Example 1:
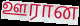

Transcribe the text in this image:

ஊரான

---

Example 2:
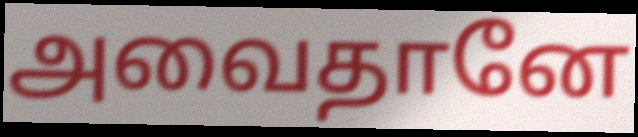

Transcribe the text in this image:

அவைதானே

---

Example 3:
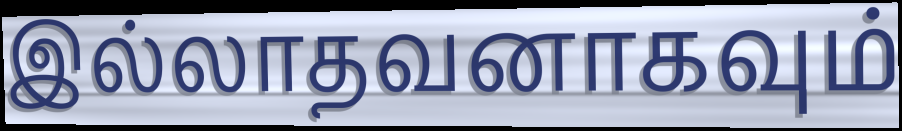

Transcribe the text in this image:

இல்லாதவனாகவும்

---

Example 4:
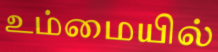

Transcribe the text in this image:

உம்மையில்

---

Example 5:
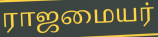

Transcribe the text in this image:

ராஜமையர்